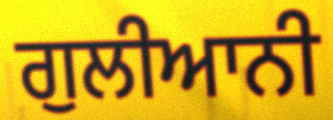
ਗੁਲੀਆਨੀ